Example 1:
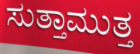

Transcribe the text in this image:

ಸುತ್ತಾಮುತ್ತ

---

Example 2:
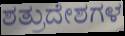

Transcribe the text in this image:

ಶತ್ರುದೇಶಗಳ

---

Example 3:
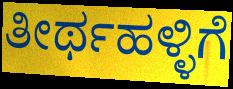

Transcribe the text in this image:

ತೀರ್ಥಹಳ್ಳಿಗೆ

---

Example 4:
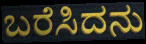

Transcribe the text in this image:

ಬರೆಸಿದನು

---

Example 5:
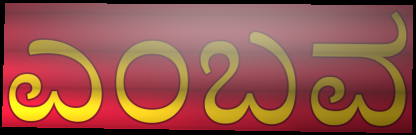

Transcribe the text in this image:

ಎಂಬವ